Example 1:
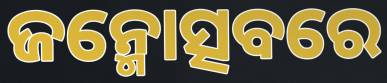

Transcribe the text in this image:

ଜନ୍ମୋତ୍ସବରେ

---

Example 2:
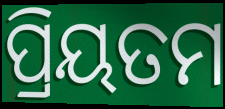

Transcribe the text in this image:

ପ୍ରିୟତମ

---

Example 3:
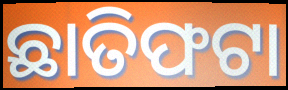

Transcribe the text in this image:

ଛାତିଫଟା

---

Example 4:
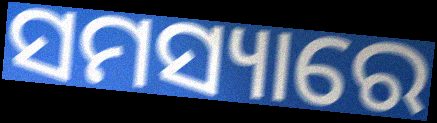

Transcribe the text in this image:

ସମସ୍ୟାରେ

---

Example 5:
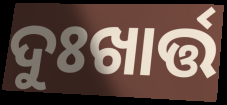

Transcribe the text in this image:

ଦୁଃଖାର୍ତ୍ତ